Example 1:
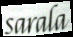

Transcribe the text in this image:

sarala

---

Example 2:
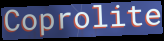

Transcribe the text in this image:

Coprolite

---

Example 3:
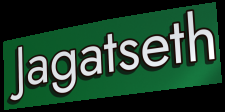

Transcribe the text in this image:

Jagatseth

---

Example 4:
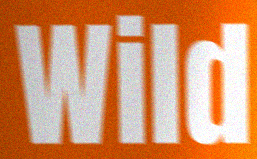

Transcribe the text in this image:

Wild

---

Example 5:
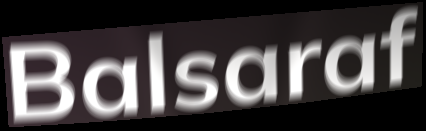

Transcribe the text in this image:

Balsaraf